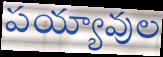
పయ్యావుల